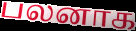
பலனாக